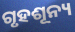
ଗୃହଶୂନ୍ୟ